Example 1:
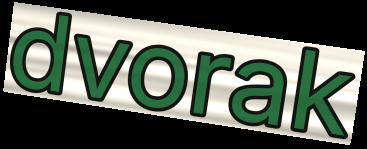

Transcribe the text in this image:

dvorak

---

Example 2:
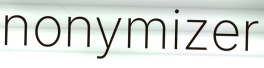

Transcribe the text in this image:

nonymizer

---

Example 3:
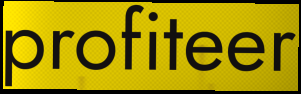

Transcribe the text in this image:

profiteer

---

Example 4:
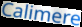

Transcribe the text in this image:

Calimere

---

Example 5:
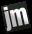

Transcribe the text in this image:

jm